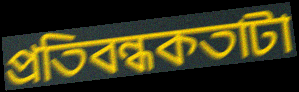
প্রতিবন্ধকতাটা